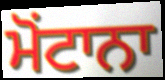
ਮੋਂਟਾਨਾ